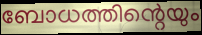
ബോധത്തിന്റെയും